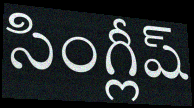
సింగ్లీష్